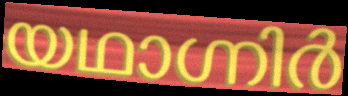
യഥാഗ്നിർ